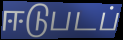
ஈடுபடப்